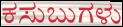
ಕಸುಬುಗಳು